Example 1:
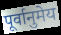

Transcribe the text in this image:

पूर्वानुमेय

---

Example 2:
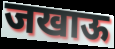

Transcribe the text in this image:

जखाऊ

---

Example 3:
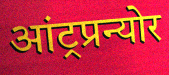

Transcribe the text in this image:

आंट्रप्रन्योर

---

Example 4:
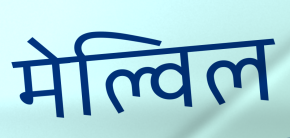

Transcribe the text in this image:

मेल्विल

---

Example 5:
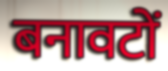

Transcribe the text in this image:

बनावटों